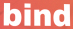
bind